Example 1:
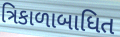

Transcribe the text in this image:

ત્રિકાળાબાધિત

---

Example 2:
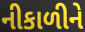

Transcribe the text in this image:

નીકાળીને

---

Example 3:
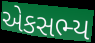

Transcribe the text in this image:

એકસભ્ય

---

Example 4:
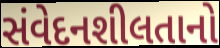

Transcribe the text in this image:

સંવેદનશીલતાનો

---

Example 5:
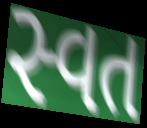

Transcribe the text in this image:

સ્વત